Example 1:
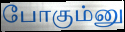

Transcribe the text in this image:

போகும்னு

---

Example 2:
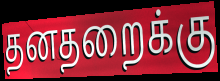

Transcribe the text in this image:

தனதறைக்கு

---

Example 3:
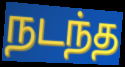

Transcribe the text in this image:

நடந்த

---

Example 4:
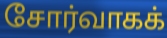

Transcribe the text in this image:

சோர்வாகக்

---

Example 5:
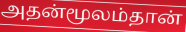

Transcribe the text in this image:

அதன்மூலம்தான்